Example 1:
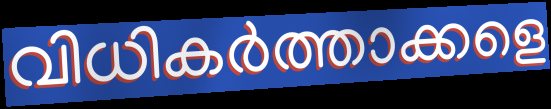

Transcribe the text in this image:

വിധികർത്താക്കളെ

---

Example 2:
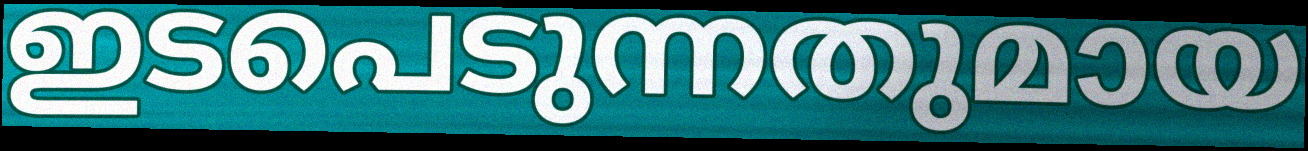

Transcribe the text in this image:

ഇടപെടുന്നതുമായ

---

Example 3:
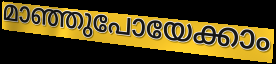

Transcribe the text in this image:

മാഞ്ഞുപോയേക്കാം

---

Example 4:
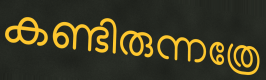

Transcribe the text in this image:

കണ്ടിരുന്നത്രേ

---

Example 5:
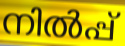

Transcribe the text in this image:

നിൽപ്പ്